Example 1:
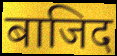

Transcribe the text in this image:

बाजिद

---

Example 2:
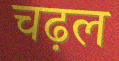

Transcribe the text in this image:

चढ़ल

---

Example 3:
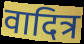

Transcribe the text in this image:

वादित्र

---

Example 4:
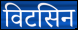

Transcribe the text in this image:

विटसिन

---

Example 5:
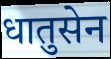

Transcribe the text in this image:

धातुसेन